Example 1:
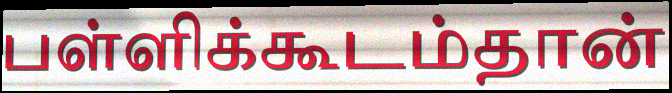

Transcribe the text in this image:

பள்ளிக்கூடம்தான்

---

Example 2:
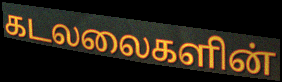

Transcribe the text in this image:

கடலலைகளின்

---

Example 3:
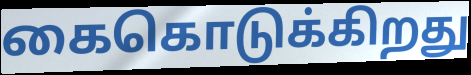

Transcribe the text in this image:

கைகொடுக்கிறது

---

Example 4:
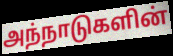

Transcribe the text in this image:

அந்நாடுகளின்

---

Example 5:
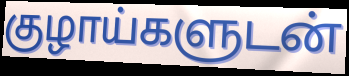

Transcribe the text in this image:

குழாய்களுடன்